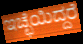
ಇಚ್ಛೆಯಿದ್ದರೆ